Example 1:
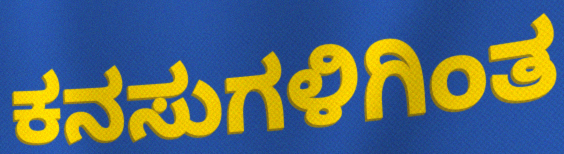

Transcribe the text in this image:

ಕನಸುಗಳಿಗಿಂತ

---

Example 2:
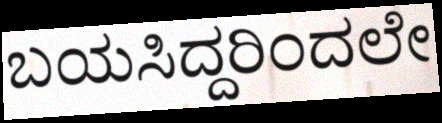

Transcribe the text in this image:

ಬಯಸಿದ್ದರಿಂದಲೇ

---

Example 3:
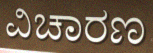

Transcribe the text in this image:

ವಿಚಾರಣ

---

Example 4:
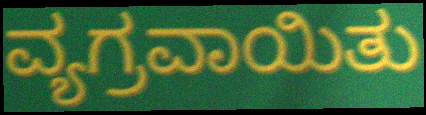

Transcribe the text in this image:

ವ್ಯಗ್ರವಾಯಿತು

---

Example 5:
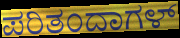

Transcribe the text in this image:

ಪರಿತಂದಾಗಳ್